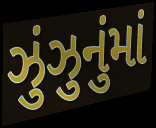
ઝુંઝુનુંમાં